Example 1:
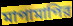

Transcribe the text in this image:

মাপামাপির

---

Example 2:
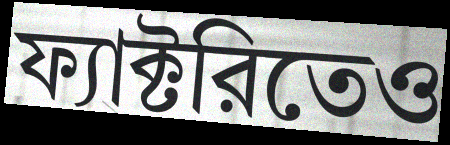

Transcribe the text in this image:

ফ্যাক্টরিতেও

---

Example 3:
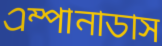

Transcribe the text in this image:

এম্পানাডাস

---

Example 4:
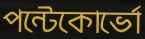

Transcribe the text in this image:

পন্টেকোর্ভো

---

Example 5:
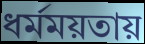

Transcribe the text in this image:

ধর্মময়তায়